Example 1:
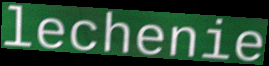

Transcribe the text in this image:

lechenie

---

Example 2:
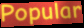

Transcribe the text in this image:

Popular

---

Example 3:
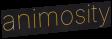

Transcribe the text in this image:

animosity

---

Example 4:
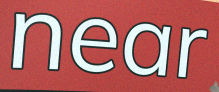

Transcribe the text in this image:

near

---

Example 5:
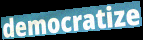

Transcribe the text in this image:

democratize